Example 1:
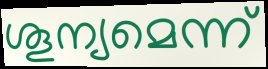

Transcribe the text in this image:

ശൂന്യമെന്ന്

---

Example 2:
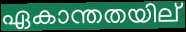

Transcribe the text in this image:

ഏകാന്തതയില്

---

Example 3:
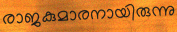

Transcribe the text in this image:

രാജകുമാരനായിരുന്നു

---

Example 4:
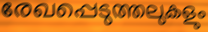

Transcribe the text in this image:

രേഖപ്പെടുത്തലുകളും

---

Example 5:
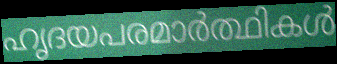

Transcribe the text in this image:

ഹൃദയപരമാർത്ഥികൾ